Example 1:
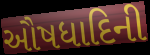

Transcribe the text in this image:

ઔષધાદિની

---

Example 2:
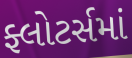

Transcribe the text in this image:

ફ્લોટર્સમાં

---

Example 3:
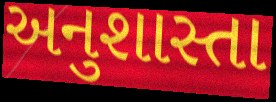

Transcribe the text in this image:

અનુશાસ્તા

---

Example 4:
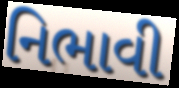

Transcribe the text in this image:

નિભાવી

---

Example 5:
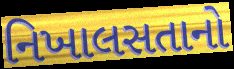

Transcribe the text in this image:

નિખાલસતાનો